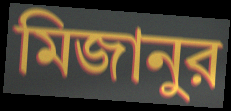
মিজানুর